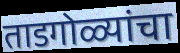
ताडगोळ्यांचा